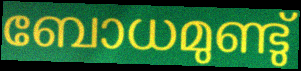
ബോധമുണ്ടു്